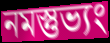
নমস্তুভ্যং